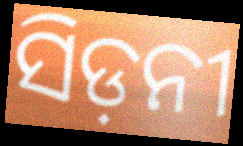
ସିଡ଼ନୀ